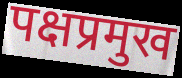
पक्षप्रमुख